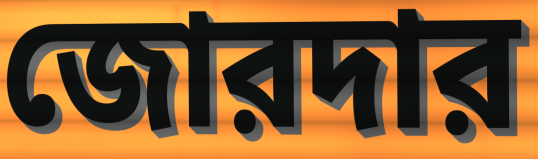
জোরদার